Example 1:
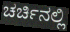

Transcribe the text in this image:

ಚರ್ಚಿನಲ್ಲಿ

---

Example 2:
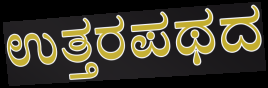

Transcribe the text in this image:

ಉತ್ತರಪಥದ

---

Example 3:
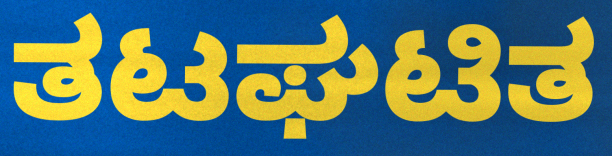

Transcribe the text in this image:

ತಟಘಟಿತ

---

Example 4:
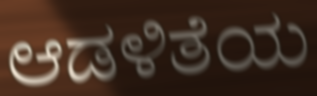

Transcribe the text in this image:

ಆಡಳಿತೆಯ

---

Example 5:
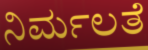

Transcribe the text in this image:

ನಿರ್ಮಲತೆ